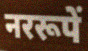
नररूपें